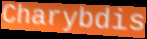
Charybdis